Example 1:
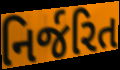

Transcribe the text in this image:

નિર્જરિત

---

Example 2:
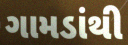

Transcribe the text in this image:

ગામડાંથી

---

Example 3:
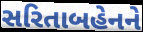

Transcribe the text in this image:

સરિતાબહેનને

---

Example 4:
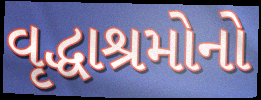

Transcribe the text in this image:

વૃદ્ધાશ્રમોનો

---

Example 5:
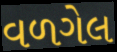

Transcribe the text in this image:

વળગેલ